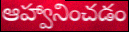
ఆహ్వానించడం